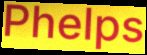
Phelps